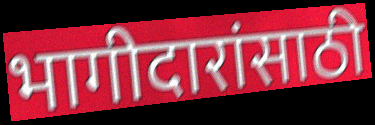
भागीदारांसाठी